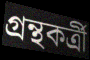
গ্রন্থকর্ত্রী